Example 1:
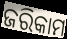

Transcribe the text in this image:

ଜରିକାମ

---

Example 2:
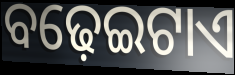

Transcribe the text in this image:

ବଢ଼େଇଟାଏ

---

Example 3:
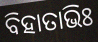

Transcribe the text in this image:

ବିହାତାଭିଃ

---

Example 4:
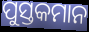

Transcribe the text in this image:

ପୁସ୍ତକମାନ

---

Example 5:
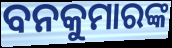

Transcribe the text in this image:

ବନକୁମାରଙ୍କ